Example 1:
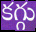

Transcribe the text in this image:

కగ్గు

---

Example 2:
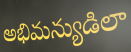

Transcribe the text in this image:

అభిమన్యుడిలా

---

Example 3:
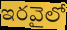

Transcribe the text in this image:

ఇరవైలో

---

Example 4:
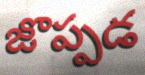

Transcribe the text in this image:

జొప్పడ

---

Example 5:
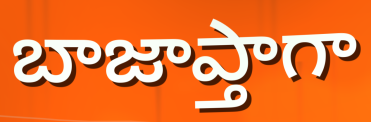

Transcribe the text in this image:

బాజాప్తాగా